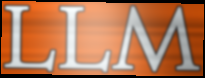
LLM